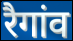
रैगांव